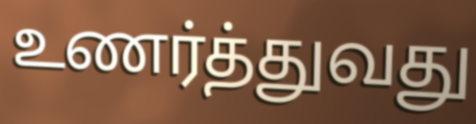
உணர்த்துவது